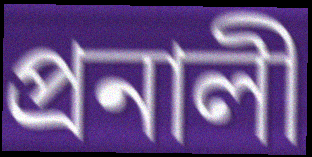
প্রনালী